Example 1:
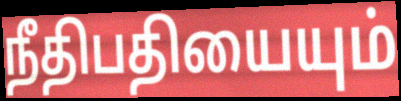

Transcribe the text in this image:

நீதிபதியையும்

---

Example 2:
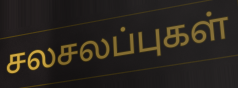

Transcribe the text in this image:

சலசலப்புகள்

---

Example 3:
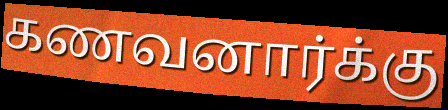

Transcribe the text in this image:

கணவனார்க்கு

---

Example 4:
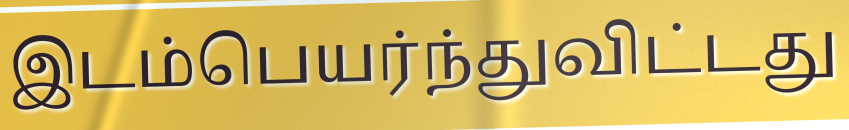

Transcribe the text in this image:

இடம்பெயர்ந்துவிட்டது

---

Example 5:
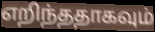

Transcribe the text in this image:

எறிந்ததாகவும்